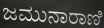
ಜಮುನಾರಾಣಿ